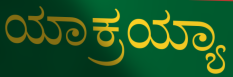
ಯಾಕ್ರಯ್ಯಾ